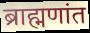
ब्राह्मणांत